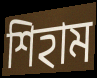
শিহাম